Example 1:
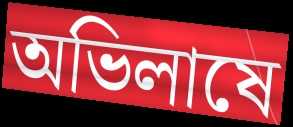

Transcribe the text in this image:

অভিলাষে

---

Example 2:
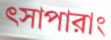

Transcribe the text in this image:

ৎসাপারাং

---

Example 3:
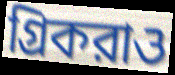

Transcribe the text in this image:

গ্রিকরাও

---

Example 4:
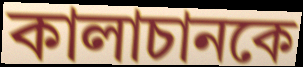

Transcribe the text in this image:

কালাচানকে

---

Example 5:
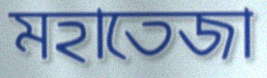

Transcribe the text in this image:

মহাতেজা